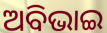
ଅବିଭାଇ